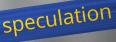
speculation